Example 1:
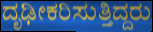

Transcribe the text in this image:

ದೃಢೀಕರಿಸುತ್ತಿದ್ದರು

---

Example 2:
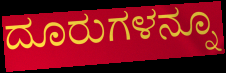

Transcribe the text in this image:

ದೂರುಗಳನ್ನೂ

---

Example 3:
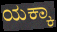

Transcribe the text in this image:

ಯಕ್ಕಾ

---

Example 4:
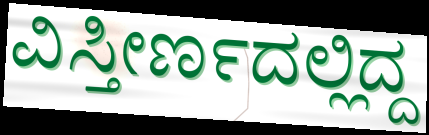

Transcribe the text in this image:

ವಿಸ್ತೀರ್ಣದಲ್ಲಿದ್ದ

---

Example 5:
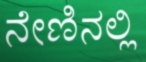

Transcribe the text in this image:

ನೇಣಿನಲ್ಲಿ